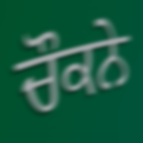
ਚੌਕਨੇ